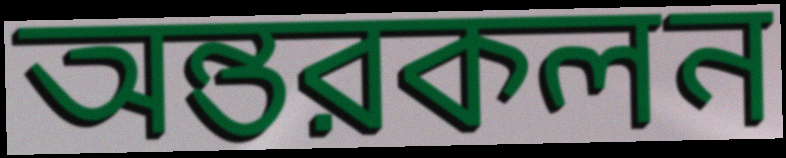
অন্তরকলন